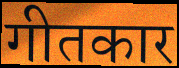
गीतकार